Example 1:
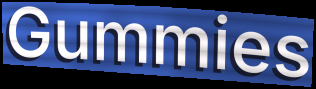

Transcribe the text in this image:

Gummies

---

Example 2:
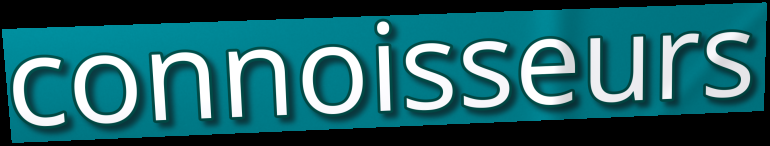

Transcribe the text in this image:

connoisseurs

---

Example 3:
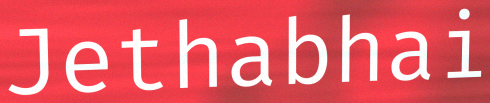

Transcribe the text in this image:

Jethabhai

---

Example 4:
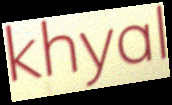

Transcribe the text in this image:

khyal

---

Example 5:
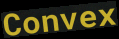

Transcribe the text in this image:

Convex